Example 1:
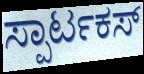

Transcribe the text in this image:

ಸ್ಪಾರ್ಟಕಸ್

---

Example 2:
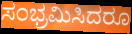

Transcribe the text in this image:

ಸಂಭ್ರಮಿಸಿದರೂ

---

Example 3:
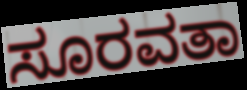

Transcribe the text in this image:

ಸೂರವತಾ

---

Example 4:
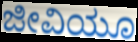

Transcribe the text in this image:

ಜೀವಿಯೂ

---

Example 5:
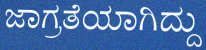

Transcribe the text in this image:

ಜಾಗ್ರತೆಯಾಗಿದ್ದು